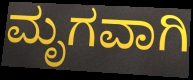
ಮೃಗವಾಗಿ